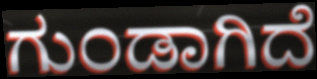
ಗುಂಡಾಗಿದೆ